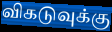
விகடுவுக்கு